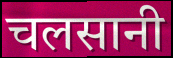
चलसानी